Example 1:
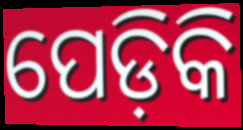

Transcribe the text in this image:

ପେଡ଼ିକି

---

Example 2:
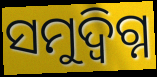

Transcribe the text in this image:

ସମୁଦ୍ବିଗ୍ନ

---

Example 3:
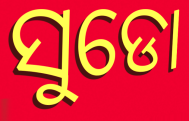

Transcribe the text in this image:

ସୁଡୋ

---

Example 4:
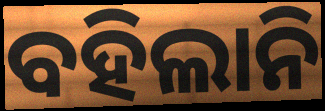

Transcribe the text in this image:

ବହିଲାନି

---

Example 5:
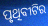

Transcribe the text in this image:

ପୃଥିବୀଟିର